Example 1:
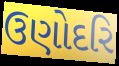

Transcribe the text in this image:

ઉણોદરિ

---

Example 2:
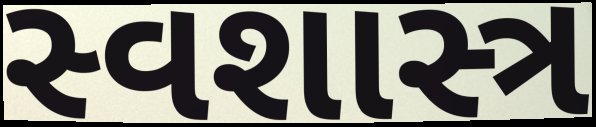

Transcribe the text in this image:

સ્વશાસ્ત્ર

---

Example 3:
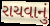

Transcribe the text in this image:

રાચવાનું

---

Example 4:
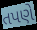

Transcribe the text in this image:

તપણે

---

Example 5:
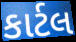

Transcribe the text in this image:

કાર્ટલ